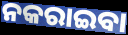
ନକରାଇବା